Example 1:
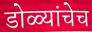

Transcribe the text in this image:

डोळ्यांचेच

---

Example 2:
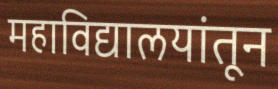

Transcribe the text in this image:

महाविद्यालयांतून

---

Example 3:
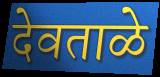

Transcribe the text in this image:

देवताळे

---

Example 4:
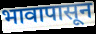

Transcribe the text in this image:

भावापासून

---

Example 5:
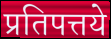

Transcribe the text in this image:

प्रतिपत्तये